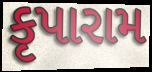
કૃપારામ